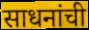
साधनांची